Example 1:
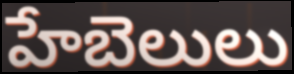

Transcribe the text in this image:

హేబెలులు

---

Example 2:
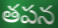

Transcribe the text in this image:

తపన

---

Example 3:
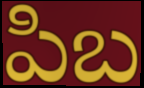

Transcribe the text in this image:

పిబ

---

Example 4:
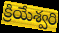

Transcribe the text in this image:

క్రియేశ్వరి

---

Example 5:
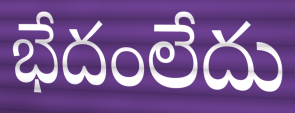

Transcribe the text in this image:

భేదంలేదు